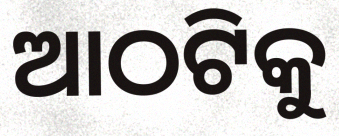
ଆଠଟିକୁ